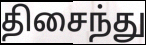
திசைந்து